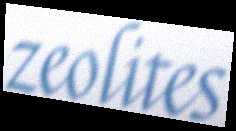
zeolites